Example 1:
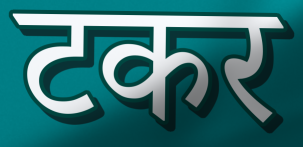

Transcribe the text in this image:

टकर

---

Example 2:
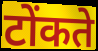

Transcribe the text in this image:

टोंकते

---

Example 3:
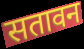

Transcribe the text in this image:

सतावन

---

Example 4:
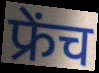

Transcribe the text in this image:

फ्रेंच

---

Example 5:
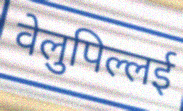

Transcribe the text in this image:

वेलुपिल्लई